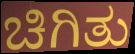
ಚಿಗಿತು